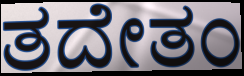
ತದೇತಂ